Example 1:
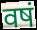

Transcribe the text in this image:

वषं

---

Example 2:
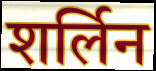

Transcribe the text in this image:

शर्लिन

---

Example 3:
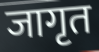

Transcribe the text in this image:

जागृत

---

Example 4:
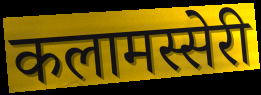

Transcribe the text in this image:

कलामस्सेरी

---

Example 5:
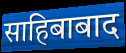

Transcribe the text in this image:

साहिबाबाद